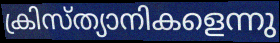
ക്രിസ്ത്യാനികളെന്നു